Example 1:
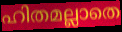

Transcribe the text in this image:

ഹിതമല്ലാതെ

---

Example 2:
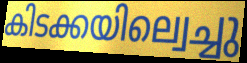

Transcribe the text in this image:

കിടക്കയില്വെച്ചു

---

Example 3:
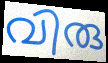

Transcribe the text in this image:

വിരു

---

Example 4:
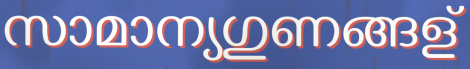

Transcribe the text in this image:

സാമാന്യഗുണങ്ങള്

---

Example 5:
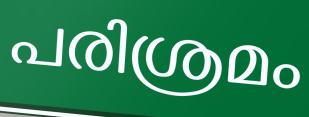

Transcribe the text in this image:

പരിശ്രമം